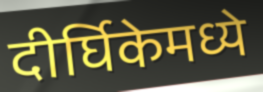
दीर्घिकेमध्ये